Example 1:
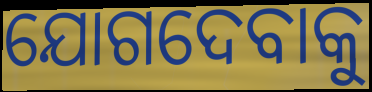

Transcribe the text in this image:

ଯୋଗଦେବାକୁ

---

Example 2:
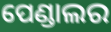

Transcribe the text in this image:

ପେଣ୍ଡାଲର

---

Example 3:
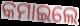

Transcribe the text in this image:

କମାଇଲେ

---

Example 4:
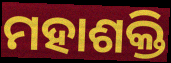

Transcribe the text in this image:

ମହାଶକ୍ତି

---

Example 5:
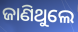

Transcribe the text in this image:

ଜାଣିଥୁଲେ